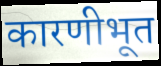
कारणीभूत